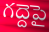
గద్దెపై